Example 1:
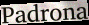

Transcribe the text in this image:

Padrona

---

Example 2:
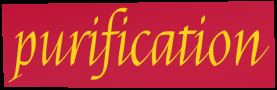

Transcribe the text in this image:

purification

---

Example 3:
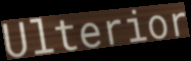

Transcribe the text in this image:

Ulterior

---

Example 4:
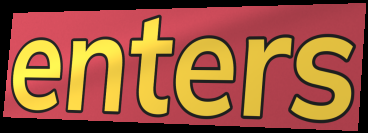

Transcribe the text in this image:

enters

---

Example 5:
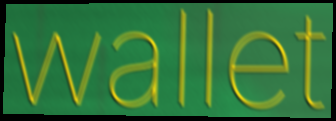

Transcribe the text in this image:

wallet